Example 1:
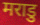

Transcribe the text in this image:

मराडु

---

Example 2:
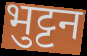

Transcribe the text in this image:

भुट्टन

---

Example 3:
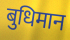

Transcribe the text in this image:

बुधिमान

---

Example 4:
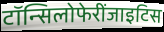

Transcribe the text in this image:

टॉन्सिलोफेरींजाइटिस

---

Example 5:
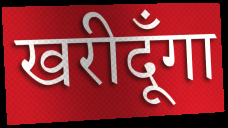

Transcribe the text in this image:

खरीदूँगा